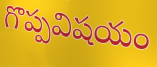
గొప్పవిషయం